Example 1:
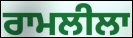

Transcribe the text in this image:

ਰਾਮਲੀਲਾ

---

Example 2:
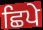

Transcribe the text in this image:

ਛਿਪੇ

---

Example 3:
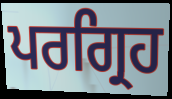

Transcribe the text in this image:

ਪਰਗ੍ਰਿਹ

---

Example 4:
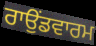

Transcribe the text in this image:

ਰਾਉਂਡਵਾਰਮ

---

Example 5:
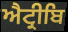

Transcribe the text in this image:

ਐਟ੍ਰੀਬਿ